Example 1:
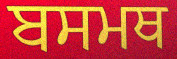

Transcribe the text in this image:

ਬਸਮਥ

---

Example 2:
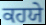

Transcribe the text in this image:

ਕਹਯੇ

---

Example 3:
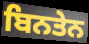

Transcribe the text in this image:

ਬਿਨਤੇਨ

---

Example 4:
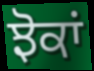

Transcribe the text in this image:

ਝੋਕਾਂ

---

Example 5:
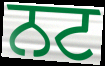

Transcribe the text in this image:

ਨਟ